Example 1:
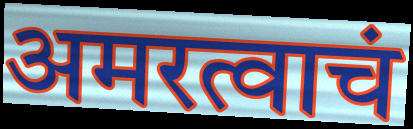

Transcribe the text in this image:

अमरत्वाचं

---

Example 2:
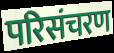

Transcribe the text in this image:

परिसंचरण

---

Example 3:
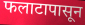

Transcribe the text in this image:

फलाटापासून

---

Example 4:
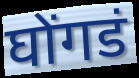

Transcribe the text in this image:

घोंगडं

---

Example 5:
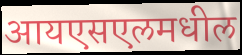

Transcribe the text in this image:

आयएसएलमधील